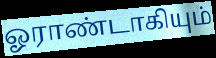
ஓராண்டாகியும்